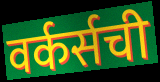
वर्कर्सची